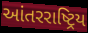
આંતરરાષ્ટ્રિય